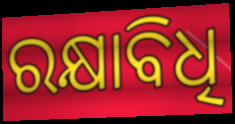
ରକ୍ଷାବିଧି